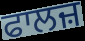
ਫਾਲਜ਼